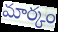
మార్కం